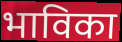
भाविका